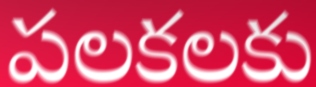
పలకలకు